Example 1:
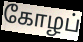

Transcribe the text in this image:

கோழப்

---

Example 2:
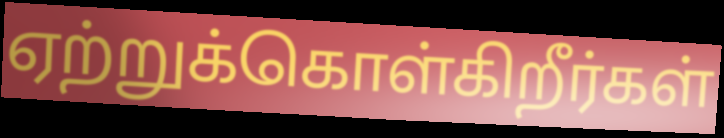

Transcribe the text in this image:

ஏற்றுக்கொள்கிறீர்கள்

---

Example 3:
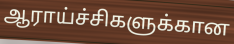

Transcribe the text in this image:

ஆராய்ச்சிகளுக்கான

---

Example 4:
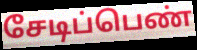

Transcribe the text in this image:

சேடிப்பெண்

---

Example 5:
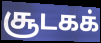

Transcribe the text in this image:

சூடகக்